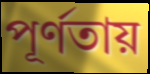
পূর্ণতায়